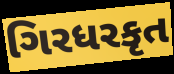
ગિરધરકૃત